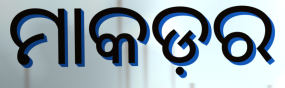
ମାକଡ଼ର